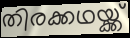
തിരക്കഥയ്ക്ക്